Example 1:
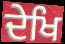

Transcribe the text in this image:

ਦੇਖਿ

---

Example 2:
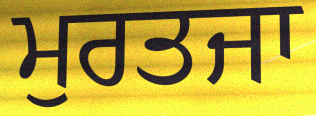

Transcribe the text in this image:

ਮੁਰਤਜਾ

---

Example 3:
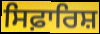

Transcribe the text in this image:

ਸਿਫ਼ਾਰਿਸ਼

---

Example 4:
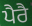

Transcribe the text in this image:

ਪੈਰੈ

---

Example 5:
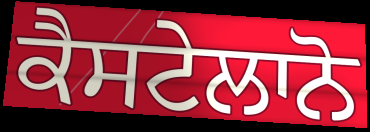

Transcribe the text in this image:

ਕੈਸਟੇਲਾਨੋ